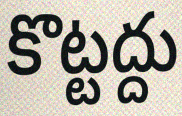
కొట్టద్దు